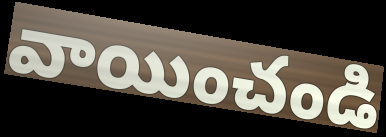
వాయించండి